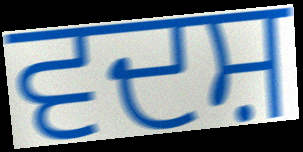
ਵਦਸ਼